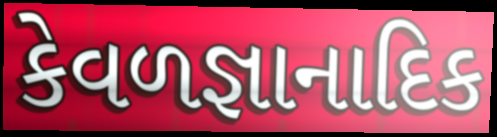
કેવળજ્ઞાનાદિક